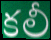
కలీ